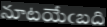
నూటయేఁబది